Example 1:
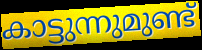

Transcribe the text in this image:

കാട്ടുന്നുമുണ്ട്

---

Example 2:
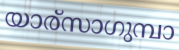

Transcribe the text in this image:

യാര്സാഗുമ്പാ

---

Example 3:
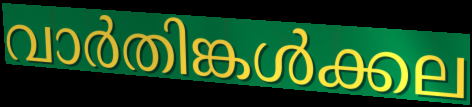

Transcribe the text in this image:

വാർതിങ്കൾക്കല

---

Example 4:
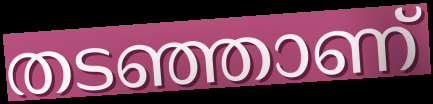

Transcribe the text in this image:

തടഞ്ഞാണ്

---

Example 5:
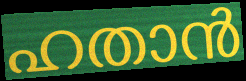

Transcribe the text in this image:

ഹതാൻ